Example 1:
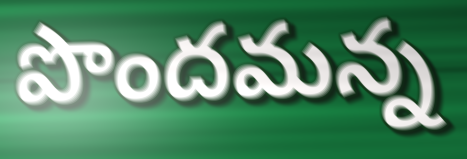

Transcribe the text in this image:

పొందమన్న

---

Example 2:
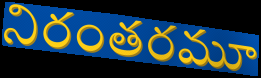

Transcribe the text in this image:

నిరంతరమూ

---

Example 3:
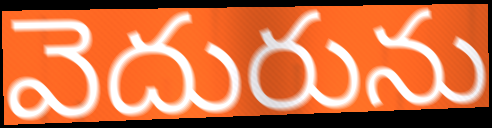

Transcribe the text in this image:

వెదురును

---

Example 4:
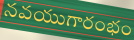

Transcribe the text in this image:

నవయుగారంభం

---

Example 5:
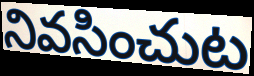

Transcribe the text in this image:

నివసించుట